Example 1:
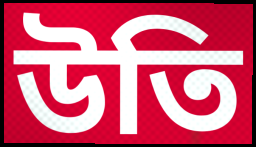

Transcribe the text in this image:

উতি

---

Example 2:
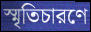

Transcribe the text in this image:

স্মৃতিচারণে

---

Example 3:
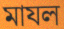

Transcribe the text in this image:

মাযল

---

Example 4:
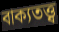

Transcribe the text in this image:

বাক্যতত্ত্ব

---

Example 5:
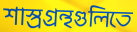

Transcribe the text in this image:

শাস্ত্রগ্রন্থগুলিতে